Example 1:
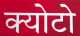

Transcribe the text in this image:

क्योटो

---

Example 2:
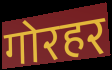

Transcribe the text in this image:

गोरहर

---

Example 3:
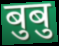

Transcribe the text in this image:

बुबु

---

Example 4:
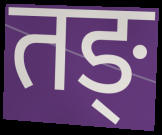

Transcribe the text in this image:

तङ्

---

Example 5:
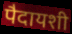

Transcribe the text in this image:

पैदायशी